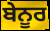
ਬੇਨੂਰ